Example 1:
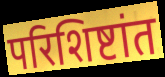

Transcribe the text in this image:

परिशिष्टांत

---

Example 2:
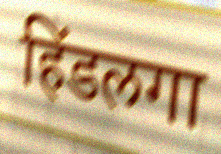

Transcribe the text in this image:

हिंडलगा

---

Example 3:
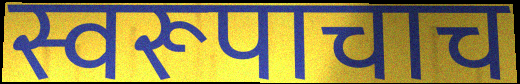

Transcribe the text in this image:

स्वरूपाचाच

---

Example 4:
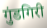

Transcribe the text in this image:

गुंडगिरी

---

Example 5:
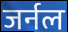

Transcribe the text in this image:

जर्नल